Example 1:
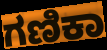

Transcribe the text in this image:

ಗಣಿಕಾ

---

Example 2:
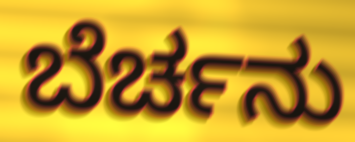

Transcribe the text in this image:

ಬೆರ್ಚನು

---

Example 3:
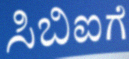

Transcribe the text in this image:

ಸಿಬಿಐಗೆ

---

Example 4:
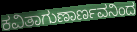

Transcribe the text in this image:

ಕವಿತಾಗುಣಾರ್ಣವನಿಂದ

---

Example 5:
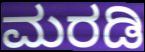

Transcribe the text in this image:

ಮರಡಿ